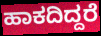
ಹಾಕದಿದ್ದರೆ